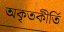
অকৃতকীর্তি